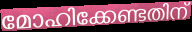
മോഹിക്കേണ്ടതിന്